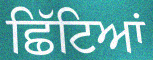
ਛਿੱਟਿਆਂ